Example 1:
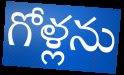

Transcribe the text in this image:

గోళ్లను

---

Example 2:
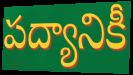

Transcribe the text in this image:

పద్యానికీ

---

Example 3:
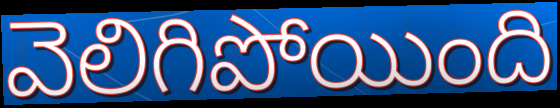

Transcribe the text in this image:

వెలిగిపోయింది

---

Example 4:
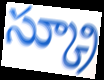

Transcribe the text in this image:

స్క్రూ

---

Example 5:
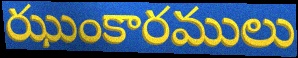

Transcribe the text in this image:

ఝుంకారములు